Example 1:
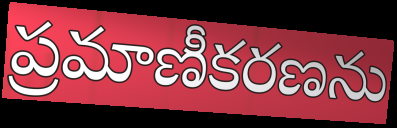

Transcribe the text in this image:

ప్రమాణీకరణను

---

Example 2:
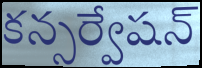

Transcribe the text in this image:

కన్సర్వేషన్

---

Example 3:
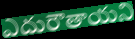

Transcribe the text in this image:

ఎదురౌతాయని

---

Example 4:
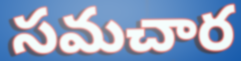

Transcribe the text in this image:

సమచార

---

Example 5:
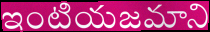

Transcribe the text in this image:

ఇంటియజమాని